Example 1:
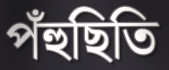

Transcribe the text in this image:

পঁহুছিতি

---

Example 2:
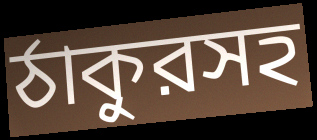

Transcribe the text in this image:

ঠাকুরসহ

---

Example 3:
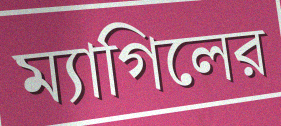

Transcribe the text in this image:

ম্যাগিলের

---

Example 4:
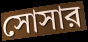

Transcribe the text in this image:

সোসার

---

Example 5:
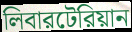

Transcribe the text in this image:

লিবারটেরিয়ান